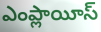
ఎంప్లాయీస్